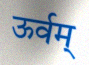
ऊर्वम्